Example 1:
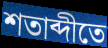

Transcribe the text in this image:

শতাব্দীতে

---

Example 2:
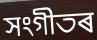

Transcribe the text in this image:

সংগীতৰ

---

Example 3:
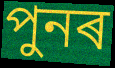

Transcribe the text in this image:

পুনৰ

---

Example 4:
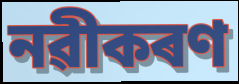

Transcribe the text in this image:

নৱীকৰণ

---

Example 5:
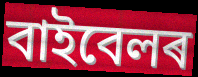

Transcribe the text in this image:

বাইবেলৰ